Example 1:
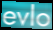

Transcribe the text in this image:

evlo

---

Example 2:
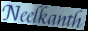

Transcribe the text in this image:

Neelkanth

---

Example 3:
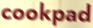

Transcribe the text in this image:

cookpad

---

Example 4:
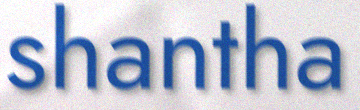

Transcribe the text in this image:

shantha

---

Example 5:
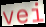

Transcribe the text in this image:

vei